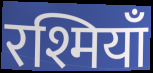
रश्मियाँ